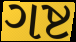
ગષ્ટ